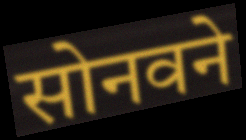
सोनवने